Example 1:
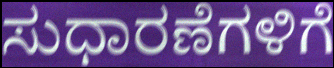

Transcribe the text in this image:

ಸುಧಾರಣೆಗಳಿಗೆ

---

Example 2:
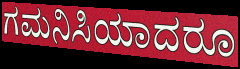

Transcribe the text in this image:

ಗಮನಿಸಿಯಾದರೂ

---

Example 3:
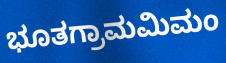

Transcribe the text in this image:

ಭೂತಗ್ರಾಮಮಿಮಂ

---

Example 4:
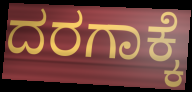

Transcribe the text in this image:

ದರಗಾಕ್ಕೆ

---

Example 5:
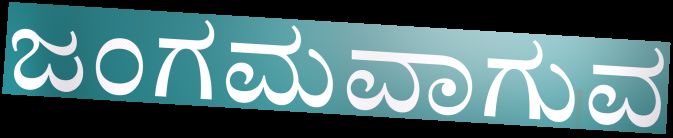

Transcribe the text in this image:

ಜಂಗಮವಾಗುವ